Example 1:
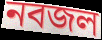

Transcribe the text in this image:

নবজল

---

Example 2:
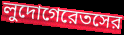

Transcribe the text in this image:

লুদোগেরেতসের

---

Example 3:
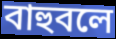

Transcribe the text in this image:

বাহুবলে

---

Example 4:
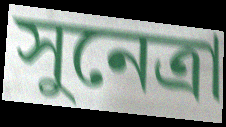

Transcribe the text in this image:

সুনেত্রা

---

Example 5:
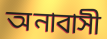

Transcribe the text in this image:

অনাবাসী